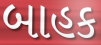
બાહક